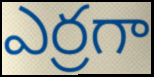
ఎర్రగా